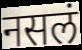
नसलं